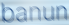
banun